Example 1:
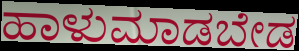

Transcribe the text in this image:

ಹಾಳುಮಾಡಬೇಡ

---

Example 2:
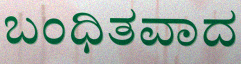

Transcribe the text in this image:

ಬಂಧಿತವಾದ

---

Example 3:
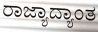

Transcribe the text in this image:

ರಾಜ್ಯಾದ್ಯಾಂತ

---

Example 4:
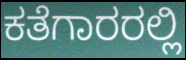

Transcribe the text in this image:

ಕತೆಗಾರರಲ್ಲಿ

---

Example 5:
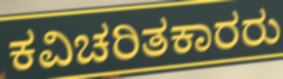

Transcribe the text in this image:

ಕವಿಚರಿತಕಾರರು